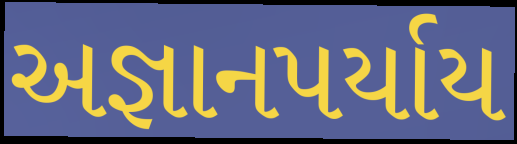
અજ્ઞાનપર્યાય